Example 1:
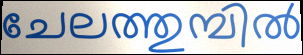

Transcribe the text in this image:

ചേലത്തുമ്പിൽ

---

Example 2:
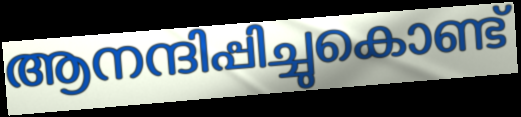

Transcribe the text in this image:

ആനന്ദിപ്പിച്ചുകൊണ്ട്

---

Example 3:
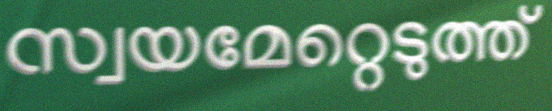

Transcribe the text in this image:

സ്വയമേറ്റെടുത്ത്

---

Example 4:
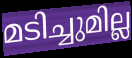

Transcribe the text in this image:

മടിച്ചുമില്ല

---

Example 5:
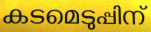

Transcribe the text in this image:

കടമെടുപ്പിന്